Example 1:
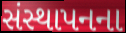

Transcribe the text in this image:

સંસ્થાપનના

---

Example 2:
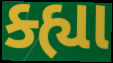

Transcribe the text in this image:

ક્હ્યા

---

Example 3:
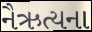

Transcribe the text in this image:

નૈઋત્યના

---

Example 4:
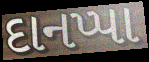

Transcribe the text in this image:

દાનપ્પા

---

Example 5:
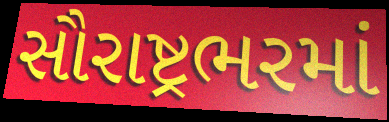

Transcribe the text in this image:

સૌરાષ્ટ્રભરમાં